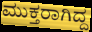
ಮುಕ್ತರಾಗಿದ್ದ